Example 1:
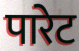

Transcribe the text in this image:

पारेट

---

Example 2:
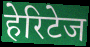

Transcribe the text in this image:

हेरिटेज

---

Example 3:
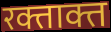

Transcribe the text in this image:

रक्ताक्त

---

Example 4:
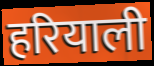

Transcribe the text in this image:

हरियाली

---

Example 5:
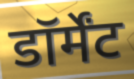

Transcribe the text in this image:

डॉर्मेंट